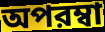
অপরম্বা